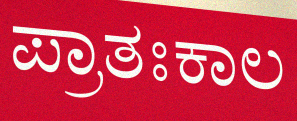
ಪ್ರಾತಃಕಾಲ